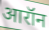
आरॉन